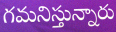
గమనిస్తున్నారు